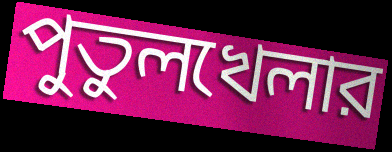
পুতুলখেলার